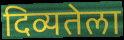
दिव्यतेला